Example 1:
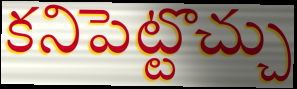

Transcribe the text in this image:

కనిపెట్టొచ్చు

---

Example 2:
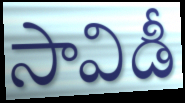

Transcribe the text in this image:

సావిడీ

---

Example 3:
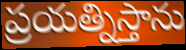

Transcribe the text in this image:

ప్రయత్నిస్తాను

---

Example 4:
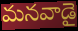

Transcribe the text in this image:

మనవాడై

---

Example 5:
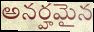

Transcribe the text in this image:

అనర్హమైన